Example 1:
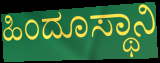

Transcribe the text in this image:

ಹಿಂದೂಸ್ಥಾನಿ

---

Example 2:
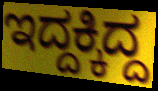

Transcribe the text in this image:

ಇದ್ದಕ್ಕಿದ್ದ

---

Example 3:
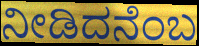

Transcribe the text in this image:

ನೀಡಿದನೆಂಬ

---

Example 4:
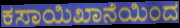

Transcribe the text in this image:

ಕಸಾಯಿಖಾನೆಯಿಂದ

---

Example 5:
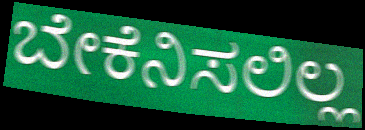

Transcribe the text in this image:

ಬೇಕೆನಿಸಲಿಲ್ಲ